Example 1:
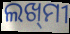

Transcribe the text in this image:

ଲଖ୍‌ମୀ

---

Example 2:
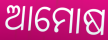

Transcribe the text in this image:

ଆମୋଷ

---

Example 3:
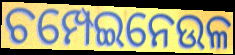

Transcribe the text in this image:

ଚମ୍ପେଇନେଉଳ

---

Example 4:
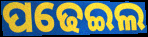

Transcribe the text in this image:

ପଢେଇଲ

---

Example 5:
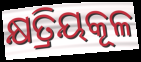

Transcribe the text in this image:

କ୍ଷତ୍ରିୟକୂଳ